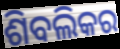
ଶିବଲିକର